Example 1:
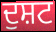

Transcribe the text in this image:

ਦੁਸ਼ਟ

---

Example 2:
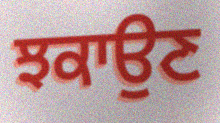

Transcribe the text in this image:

ਝਕਾਉਣ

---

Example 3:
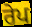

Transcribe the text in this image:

ਰੇਪ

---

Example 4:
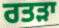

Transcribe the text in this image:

ਰਤੜਾ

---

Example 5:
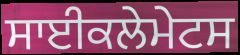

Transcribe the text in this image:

ਸਾਈਕਲੇਮੇਟਸ